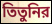
তিতুনির